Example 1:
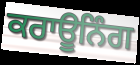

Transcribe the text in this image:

ਕਰਾਊਨਿੰਗ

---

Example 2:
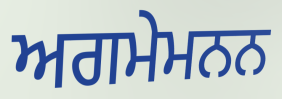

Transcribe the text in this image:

ਅਗਮੇਮਨਨ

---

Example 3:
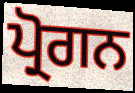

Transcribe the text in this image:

ਪ੍ਰੋਗਨ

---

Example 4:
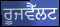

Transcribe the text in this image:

ਰੂਜਵੈੱਲਟ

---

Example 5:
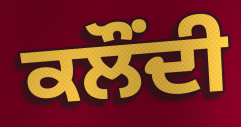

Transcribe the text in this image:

ਕਲੌਂਦੀ